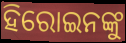
ହିରୋଇନଙ୍କୁ